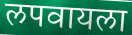
लपवायला